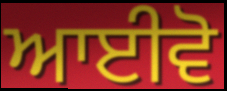
ਆਈਵੋ